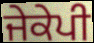
ਜੇਕੇਪੀ